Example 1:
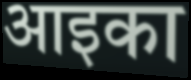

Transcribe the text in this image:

आइका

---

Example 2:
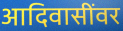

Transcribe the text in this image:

आदिवासींवर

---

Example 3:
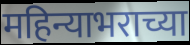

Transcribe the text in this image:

महिन्याभराच्या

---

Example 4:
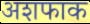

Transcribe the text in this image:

अशफाक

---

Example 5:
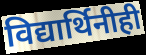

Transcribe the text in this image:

विद्यार्थिनीही